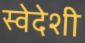
स्वेदेशी